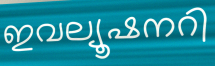
ഇവല്യൂഷനറി